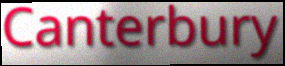
Canterbury